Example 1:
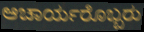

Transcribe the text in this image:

ಆಚಾರ್ಯರೊಬ್ಬರು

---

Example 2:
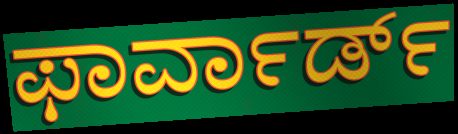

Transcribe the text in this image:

ಫಾರ್ವಾರ್ಡ್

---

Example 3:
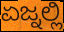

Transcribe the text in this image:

ಏಜ್ನಲ್ಲಿ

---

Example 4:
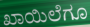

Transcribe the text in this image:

ಖಾಯಿಲೆಗೂ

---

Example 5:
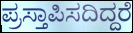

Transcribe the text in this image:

ಪ್ರಸ್ತಾಪಿಸದಿದ್ದರೆ